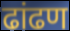
ढांढण